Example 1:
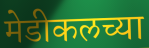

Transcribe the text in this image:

मेडीकलच्या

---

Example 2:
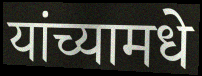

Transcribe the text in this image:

यांच्यामधे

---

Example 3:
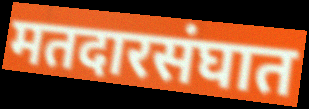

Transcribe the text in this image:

मतदारसंघात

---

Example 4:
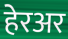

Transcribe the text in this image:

हेरअर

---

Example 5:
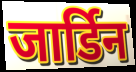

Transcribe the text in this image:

जार्डिन